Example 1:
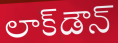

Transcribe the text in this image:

లాక్‌డౌన్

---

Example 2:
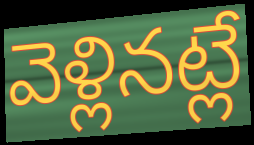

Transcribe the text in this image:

వెళ్లినట్లే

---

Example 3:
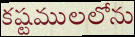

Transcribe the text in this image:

కష్టములలోను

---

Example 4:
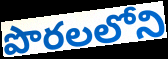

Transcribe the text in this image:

పొరలలోని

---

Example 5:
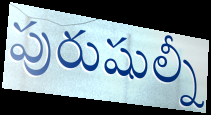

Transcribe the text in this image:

పురుషుల్నీ